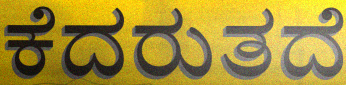
ಕೆದರುತದೆ